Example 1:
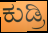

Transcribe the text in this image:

ಕುಡ್ರಿ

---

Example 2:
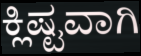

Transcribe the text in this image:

ಕ್ಲಿಷ್ಟವಾಗಿ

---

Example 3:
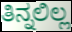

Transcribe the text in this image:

ತಿನ್ನಲಿಲ್ಲ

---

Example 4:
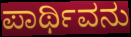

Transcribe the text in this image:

ಪಾರ್ಥಿವನು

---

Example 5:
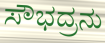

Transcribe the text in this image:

ಸೌಭದ್ರನು